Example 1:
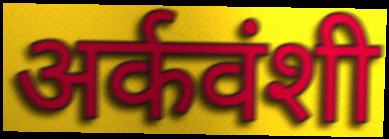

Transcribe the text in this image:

अर्कवंशी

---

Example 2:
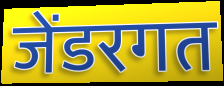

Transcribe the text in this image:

जेंडरगत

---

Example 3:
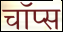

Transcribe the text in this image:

चॉप्स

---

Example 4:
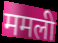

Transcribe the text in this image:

ममली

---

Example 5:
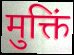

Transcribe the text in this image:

मुक्तिं